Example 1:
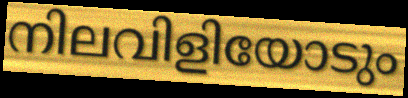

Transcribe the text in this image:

നിലവിളിയോടും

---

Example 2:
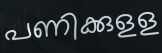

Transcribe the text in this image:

പണിക്കുളള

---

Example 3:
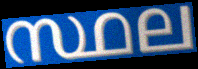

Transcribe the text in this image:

സ്ഥല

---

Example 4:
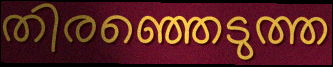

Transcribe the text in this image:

തിരഞ്ഞെടുത്ത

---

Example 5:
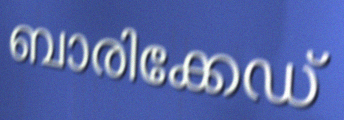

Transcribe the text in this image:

ബാരിക്കേഡ്